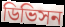
ডিভিসন